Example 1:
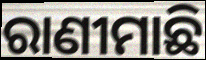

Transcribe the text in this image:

ରାଣୀମାଛି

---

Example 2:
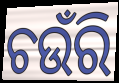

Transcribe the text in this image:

ଚଉଁରି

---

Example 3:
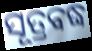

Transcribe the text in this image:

ସୂତ୍ରବଦ୍ଧ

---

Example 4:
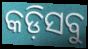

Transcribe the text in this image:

କଡ଼ିସବୁ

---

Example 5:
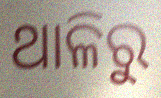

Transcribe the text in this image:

ଥାଳିରୁ